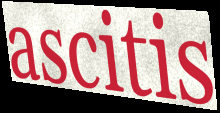
ascitis